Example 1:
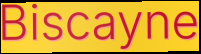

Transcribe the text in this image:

Biscayne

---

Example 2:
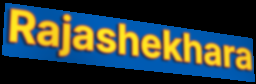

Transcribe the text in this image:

Rajashekhara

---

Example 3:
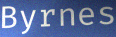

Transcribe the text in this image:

Byrnes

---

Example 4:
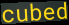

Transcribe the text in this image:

cubed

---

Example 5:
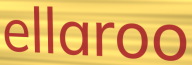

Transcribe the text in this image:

ellaroo